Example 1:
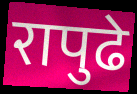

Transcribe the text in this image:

रापुढे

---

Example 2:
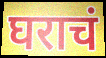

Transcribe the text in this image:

घराचं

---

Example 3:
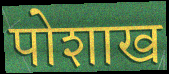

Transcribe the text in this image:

पोशाख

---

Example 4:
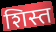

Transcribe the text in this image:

शिस्त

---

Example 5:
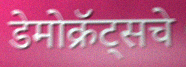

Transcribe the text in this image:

डेमोक्रॅट्सचे